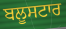
ਬਲੂਸਟਾਰ